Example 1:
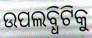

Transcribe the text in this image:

ଉପଲବ୍ଧିଟିକୁ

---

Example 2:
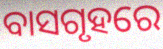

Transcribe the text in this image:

ବାସଗୃହରେ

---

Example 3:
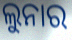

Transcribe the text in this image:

ଲୁନାର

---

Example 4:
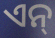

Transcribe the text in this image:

ଏନ୍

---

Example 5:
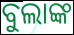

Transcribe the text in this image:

ବୁଲାଙ୍କ